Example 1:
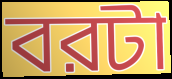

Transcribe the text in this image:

বরটা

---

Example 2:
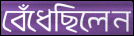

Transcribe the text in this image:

বেঁধেছিলেন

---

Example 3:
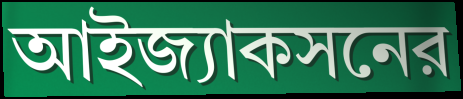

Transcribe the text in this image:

আইজ্যাকসনের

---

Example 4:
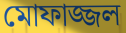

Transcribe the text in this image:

মোফাজ্জল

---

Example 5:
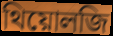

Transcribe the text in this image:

থিয়োলজি